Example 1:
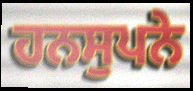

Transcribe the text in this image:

ਹਨਸੁਪਨੇ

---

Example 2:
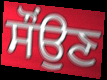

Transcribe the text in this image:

ਸੌਂਉਣ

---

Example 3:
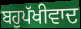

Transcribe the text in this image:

ਬਹੁਪੱਖੀਵਾਦ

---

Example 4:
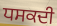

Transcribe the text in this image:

ਧਸਕਦੀ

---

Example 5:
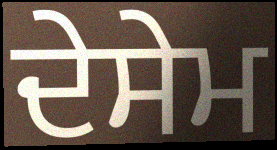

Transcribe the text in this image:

ਦੇਸੇਮ